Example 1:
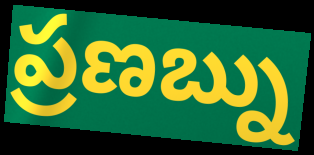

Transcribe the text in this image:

ప్రణబ్ను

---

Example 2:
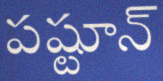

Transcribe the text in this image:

పష్టూన్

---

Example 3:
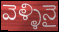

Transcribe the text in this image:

వెళ్ళినై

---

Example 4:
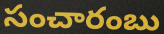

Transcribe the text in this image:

సంచారంబు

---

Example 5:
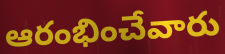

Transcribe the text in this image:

ఆరంభించేవారు